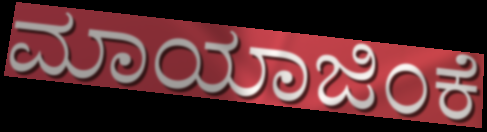
ಮಾಯಾಜಿಂಕೆ